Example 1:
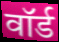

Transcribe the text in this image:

वॉर्ड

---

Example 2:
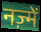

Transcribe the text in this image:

नज़्में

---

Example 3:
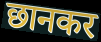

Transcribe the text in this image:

छानकर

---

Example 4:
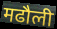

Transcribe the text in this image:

मढौली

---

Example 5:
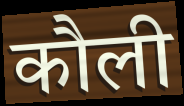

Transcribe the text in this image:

कौली